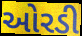
ઓરડી